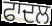
ਫਾਦਲ